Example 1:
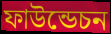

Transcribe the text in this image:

ফাউন্ডেচন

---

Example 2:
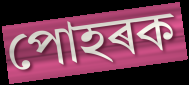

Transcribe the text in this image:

পোহৰক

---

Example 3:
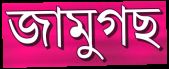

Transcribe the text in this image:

জামুগছ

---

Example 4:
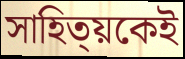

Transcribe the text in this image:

সাহিত্য়কেই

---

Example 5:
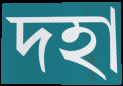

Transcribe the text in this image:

দহা